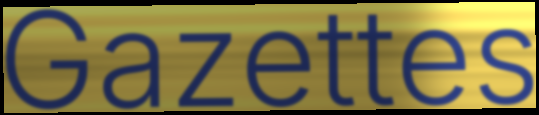
Gazettes